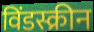
विंडस्क्रीन